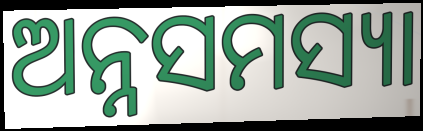
ଅନ୍ନସମସ୍ୟା